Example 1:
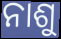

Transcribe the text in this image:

ନାଶୁ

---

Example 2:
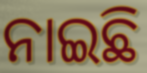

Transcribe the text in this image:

ନାଇଛି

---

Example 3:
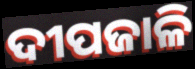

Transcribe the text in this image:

ଦୀପଜାଳି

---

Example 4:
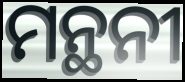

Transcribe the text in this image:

ମନ୍ଥନୀ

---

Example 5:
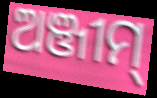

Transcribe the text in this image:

ଅଞ୍ଜୀମ୍